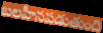
బలహీనపడుతుంది